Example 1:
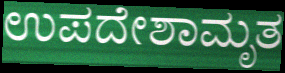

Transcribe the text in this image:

ಉಪದೇಶಾಮೃತ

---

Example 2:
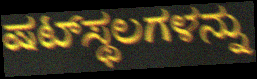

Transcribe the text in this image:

ಷಟ್‌ಸ್ಥಲಗಳನ್ನು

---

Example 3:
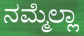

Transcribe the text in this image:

ನಮ್ಮೆಲ್ಲಾ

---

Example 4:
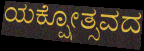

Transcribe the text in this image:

ಯಕ್ಷೋತ್ಸವದ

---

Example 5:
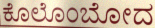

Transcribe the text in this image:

ಕೊಲೊಂಬೋದ